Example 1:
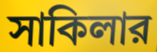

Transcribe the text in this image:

সাকিলার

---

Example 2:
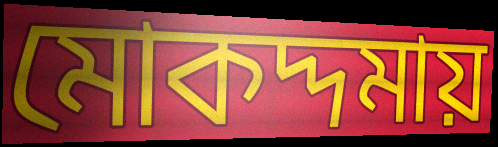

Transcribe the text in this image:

মোকদ্দমায়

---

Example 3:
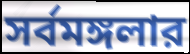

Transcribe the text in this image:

সর্বমঙ্গলার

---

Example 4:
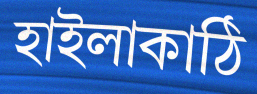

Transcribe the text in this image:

হাইলাকাঠি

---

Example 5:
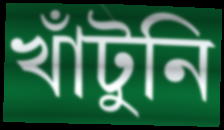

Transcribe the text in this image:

খাঁটুনি